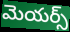
మెయర్స్